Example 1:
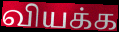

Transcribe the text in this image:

வியக்க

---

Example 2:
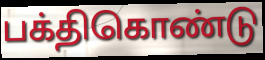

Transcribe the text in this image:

பக்திகொண்டு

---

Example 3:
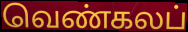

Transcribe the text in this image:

வெண்கலப்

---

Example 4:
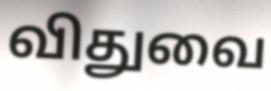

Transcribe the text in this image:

விதுவை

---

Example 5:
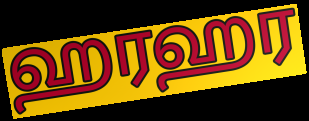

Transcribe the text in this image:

ஹரஹர